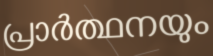
പ്രാർത്ഥനയും